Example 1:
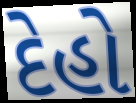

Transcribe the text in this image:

દેહો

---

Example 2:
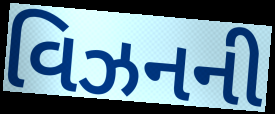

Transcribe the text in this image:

વિઝનની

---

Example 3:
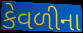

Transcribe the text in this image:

કેવળીના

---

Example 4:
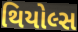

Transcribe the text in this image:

થિયોલ્સ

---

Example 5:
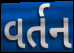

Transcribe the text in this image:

વર્તન